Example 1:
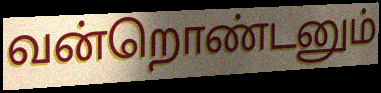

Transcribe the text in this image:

வன்றொண்டனும்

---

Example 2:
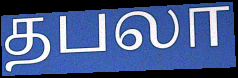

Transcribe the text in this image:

தபலா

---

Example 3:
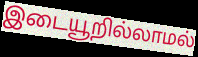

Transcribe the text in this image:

இடையூறில்லாமல்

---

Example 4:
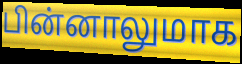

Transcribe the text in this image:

பின்னாலுமாக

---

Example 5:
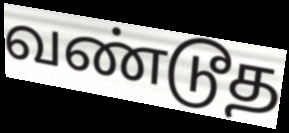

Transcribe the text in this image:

வண்டூத